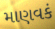
માણવકં